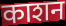
काशन